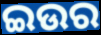
ଇଉର